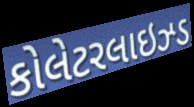
કોલેટરલાઇઝ્ડ